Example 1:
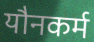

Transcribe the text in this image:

यौनकर्म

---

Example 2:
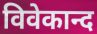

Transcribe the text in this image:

विवेकान्द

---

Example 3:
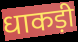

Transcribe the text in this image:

धाकड़ी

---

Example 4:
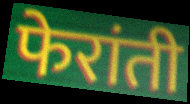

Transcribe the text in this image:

फेरांती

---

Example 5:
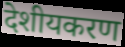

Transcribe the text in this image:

देशीयकरण